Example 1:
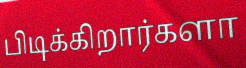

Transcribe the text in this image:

பிடிக்கிறார்களா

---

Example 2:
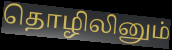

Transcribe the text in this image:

தொழிலினும்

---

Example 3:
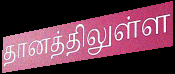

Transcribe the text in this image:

தானத்திலுள்ள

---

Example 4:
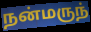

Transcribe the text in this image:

நன்மருந்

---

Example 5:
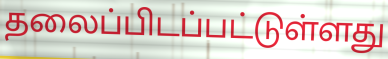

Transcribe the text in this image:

தலைப்பிடப்பட்டுள்ளது